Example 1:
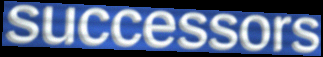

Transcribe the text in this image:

successors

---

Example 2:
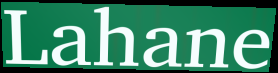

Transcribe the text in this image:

Lahane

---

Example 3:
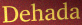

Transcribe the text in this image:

Dehada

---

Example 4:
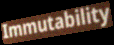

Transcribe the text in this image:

Immutability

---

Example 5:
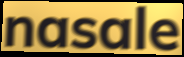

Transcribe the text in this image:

nasale